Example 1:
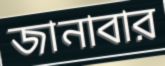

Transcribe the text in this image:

জানাবার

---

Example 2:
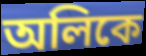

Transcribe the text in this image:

অলিকে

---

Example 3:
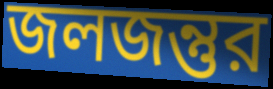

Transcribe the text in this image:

জলজন্তুর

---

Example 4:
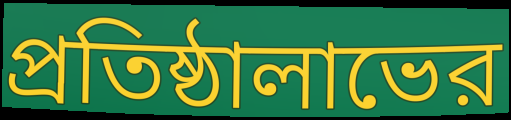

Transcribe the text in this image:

প্রতিষ্ঠালাভের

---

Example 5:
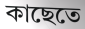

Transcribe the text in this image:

কাছেতে